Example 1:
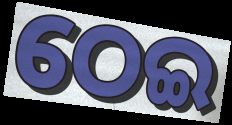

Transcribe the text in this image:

ଠେଇ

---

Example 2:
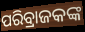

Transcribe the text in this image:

ପରିବ୍ରାଜକଙ୍କ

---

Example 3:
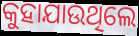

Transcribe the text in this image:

କୁହାଯାଉଥିଲେ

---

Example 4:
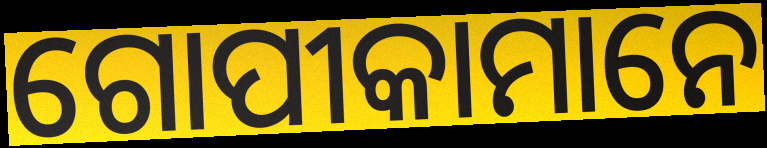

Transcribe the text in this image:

ଗୋପୀକାମାନେ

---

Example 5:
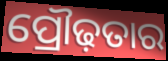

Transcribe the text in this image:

ପ୍ରୌଢ଼ତାର